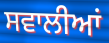
ਸਵਾਲੀਆਂ